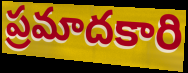
ప్రమాదకారి